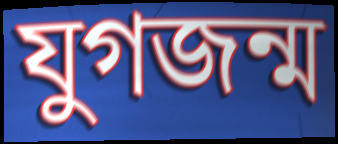
যুগজন্ম